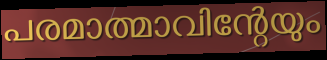
പരമാത്മാവിന്റേയും